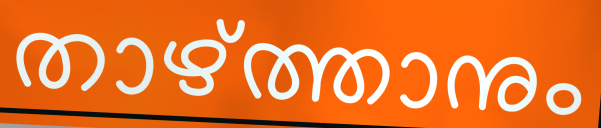
താഴ്ത്താനും